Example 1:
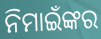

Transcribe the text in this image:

ନିମାଇଁଙ୍କର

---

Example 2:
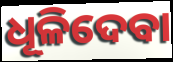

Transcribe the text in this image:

ଧୂଳିଦେବା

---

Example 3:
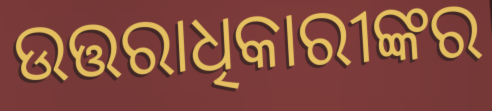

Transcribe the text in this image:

ଉତ୍ତରାଧିକାରୀଙ୍କର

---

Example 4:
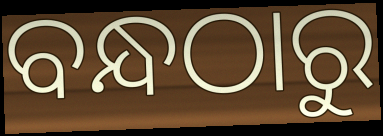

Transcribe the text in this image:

ବନ୍ଧଠାରୁ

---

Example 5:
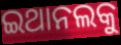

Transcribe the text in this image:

ଇଥାନଲକୁ